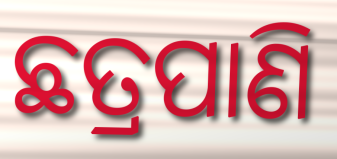
ଛତ୍ରପାଣି